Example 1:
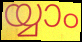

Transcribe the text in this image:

യ്യാം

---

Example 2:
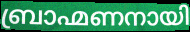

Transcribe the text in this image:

ബ്രാഹ്മണനായി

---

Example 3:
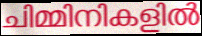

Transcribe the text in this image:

ചിമ്മിനികളിൽ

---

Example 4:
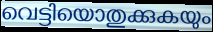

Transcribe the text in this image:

വെട്ടിയൊതുക്കുകയും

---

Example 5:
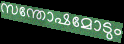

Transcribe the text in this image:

സന്തോഷമോടും